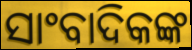
ସାଂବାଦିକଙ୍କ